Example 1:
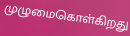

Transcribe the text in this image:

முழுமைகொள்கிறது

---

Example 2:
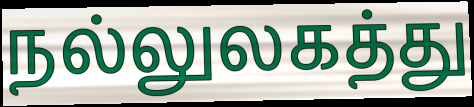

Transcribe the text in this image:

நல்லுலகத்து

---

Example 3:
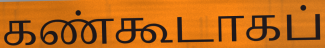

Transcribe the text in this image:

கண்கூடாகப்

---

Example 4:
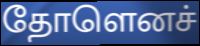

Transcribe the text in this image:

தோளெனச்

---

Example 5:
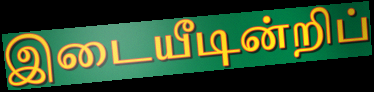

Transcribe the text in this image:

இடையீடின்றிப்